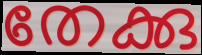
തേക്കു